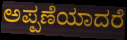
ಅಪ್ಪಣೆಯಾದರೆ